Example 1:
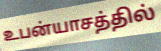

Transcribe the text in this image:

உபன்யாசத்தில்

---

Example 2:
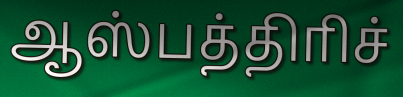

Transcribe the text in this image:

ஆஸ்பத்திரிச்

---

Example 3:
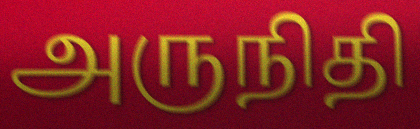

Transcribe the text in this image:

அருநிதி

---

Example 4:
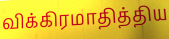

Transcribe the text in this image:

விக்கிரமாதித்திய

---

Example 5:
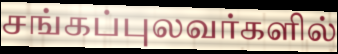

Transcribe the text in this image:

சங்கப்புலவர்களில்